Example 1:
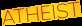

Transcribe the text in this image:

ATHEIST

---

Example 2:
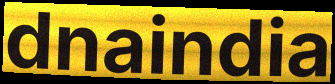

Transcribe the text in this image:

dnaindia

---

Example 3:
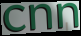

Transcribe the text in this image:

cnn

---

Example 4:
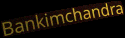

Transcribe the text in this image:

Bankimchandra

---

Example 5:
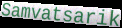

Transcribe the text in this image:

Samvatsarik